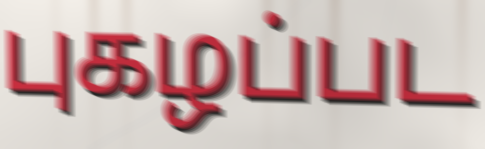
புகழப்பட